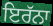
ਇਰੱਨਾ